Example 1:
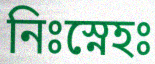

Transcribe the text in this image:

নিঃস্নেহঃ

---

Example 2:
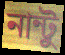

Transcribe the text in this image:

নান্টু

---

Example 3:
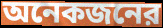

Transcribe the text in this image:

অনেকজনের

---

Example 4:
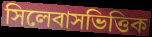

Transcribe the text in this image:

সিলেবাসভিত্তিক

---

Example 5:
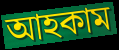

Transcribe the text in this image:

আহকাম